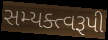
સમ્યક્ત્વરૂપી